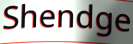
Shendge